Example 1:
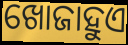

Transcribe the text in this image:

ଖୋଜାହୁଏ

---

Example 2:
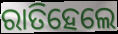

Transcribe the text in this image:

ରାତିହେଲେ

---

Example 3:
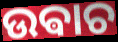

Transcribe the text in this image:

ଉଵାଚ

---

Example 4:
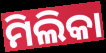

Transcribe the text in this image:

ମିଲିକା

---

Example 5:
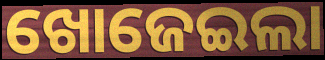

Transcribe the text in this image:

ଖୋଜେଇଲା